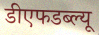
डीएफडब्ल्यू